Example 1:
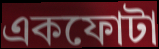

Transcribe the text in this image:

একফোটা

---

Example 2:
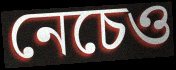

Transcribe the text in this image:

নেচেও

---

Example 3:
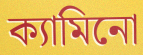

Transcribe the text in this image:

ক্যামিনো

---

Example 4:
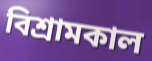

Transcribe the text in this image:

বিশ্রামকাল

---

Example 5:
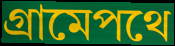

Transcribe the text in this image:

গ্রামেপথে